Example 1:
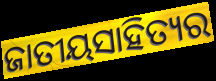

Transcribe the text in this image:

ଜାତୀୟସାହିତ୍ୟର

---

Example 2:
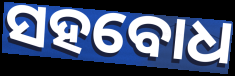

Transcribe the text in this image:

ସହବୋଧ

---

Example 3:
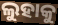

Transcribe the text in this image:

ଲୁହାକୁ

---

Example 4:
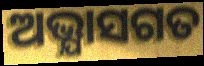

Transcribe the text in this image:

ଅଭ୍ଯାସଗତ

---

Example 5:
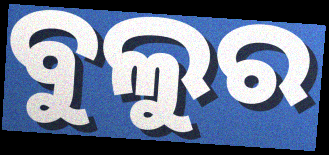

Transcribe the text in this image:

ବୁଲୁର